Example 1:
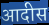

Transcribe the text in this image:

आदीस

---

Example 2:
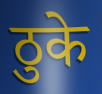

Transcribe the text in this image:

ठुके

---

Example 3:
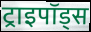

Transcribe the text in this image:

ट्राइपॉड्स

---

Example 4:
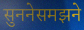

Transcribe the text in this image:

सुननेसमझने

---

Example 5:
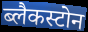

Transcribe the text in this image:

ब्लैकस्टोन